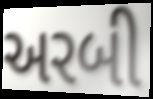
અરબી